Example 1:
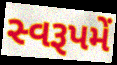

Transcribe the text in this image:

સ્વરૂપમેં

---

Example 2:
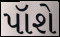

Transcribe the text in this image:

પૉશે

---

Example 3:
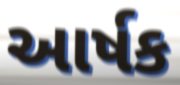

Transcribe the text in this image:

આર્ષક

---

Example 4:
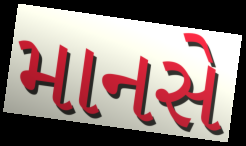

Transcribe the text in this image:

માનસે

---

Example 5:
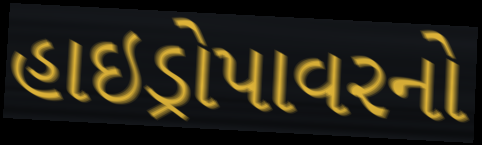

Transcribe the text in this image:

હાઇડ્રોપાવરનો